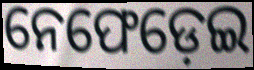
ନେଫେଡ଼େଇ